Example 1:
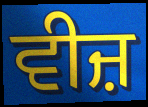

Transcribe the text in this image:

ਵੀਜ਼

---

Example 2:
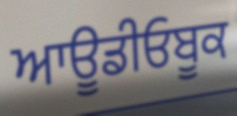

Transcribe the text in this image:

ਆਊਡੀਓਬੂਕ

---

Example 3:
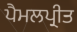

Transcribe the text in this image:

ਪੈਮਲਪ੍ਰੀਤ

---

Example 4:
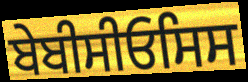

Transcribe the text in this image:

ਬੇਬੀਸੀਓਸਿਸ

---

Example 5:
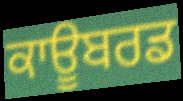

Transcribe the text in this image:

ਕਾਊਬਰਡ